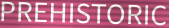
PREHISTORIC